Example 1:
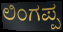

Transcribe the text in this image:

ಲಿಂಗಪ್ಪ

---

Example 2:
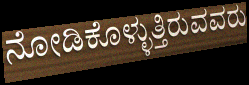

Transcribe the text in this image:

ನೋಡಿಕೊಳ್ಳುತ್ತಿರುವವರು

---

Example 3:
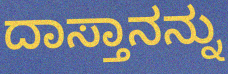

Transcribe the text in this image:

ದಾಸ್ತಾನನ್ನು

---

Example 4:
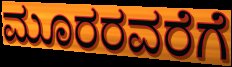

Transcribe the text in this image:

ಮೂರರವರೆಗೆ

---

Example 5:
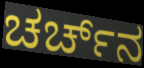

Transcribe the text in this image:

ಚರ್ಚ್‌ನ